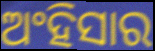
ଅଂହିସାର